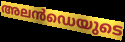
അലൻഡെയുടെ